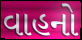
વાહનો